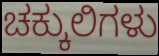
ಚಕ್ಕುಲಿಗಳು